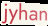
jyhan